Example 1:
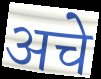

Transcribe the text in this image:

अचे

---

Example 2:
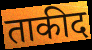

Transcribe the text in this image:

ताकीद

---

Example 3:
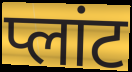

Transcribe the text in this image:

प्‍लांट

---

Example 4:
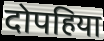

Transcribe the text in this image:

दोपहिया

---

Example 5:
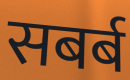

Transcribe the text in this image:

सबर्ब